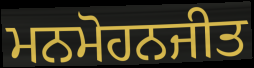
ਮਨਮੋਹਨਜੀਤ